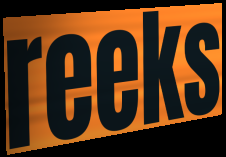
reeks